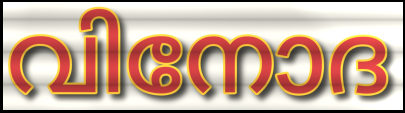
വിനോദ